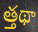
త్తథా